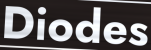
Diodes